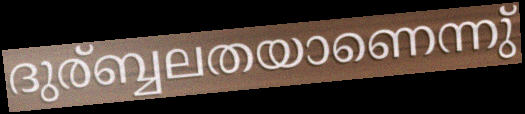
ദുര്ബ്ബലതയാണെന്നു്